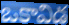
ఒకావిడ